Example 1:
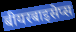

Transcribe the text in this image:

बीयरबाइसेप्स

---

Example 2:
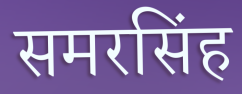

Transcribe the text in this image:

समरसिंह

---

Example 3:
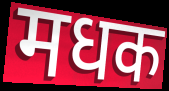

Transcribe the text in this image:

मधक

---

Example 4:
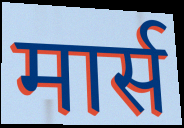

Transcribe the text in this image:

मार्स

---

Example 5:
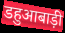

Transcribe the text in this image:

डहुआबाड़ी